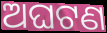
ଅଘଟଣ